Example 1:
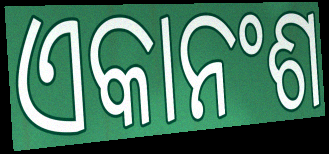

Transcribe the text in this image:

ଏକାନଂଶ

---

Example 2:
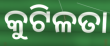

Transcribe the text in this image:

କୁଟିଳତା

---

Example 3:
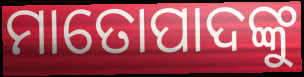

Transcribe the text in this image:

ମାତୋପାଦଙ୍କୁ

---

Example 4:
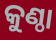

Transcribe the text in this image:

କୁଣ୍ଠା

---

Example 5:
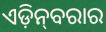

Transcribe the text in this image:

ଏଡ଼ିନ୍‍ବରାର